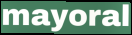
mayoral